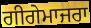
ਗੀਗੇਮਾਜਰਾ